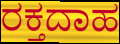
ರಕ್ತದಾಹ